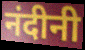
नंदीनी